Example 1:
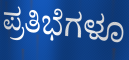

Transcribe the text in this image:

ಪ್ರತಿಭೆಗಳೂ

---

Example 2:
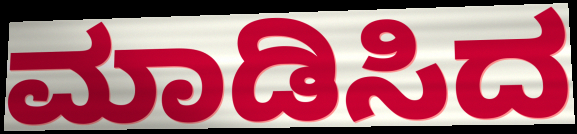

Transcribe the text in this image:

ಮಾಡಿಸಿದ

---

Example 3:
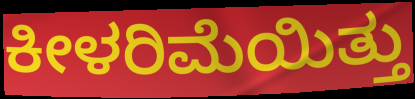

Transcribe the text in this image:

ಕೀಳರಿಮೆಯಿತ್ತು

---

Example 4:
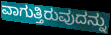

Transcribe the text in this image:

ವಾಗುತ್ತಿರುವುದನ್ನು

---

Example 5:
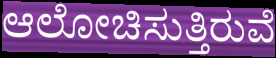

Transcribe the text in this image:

ಆಲೋಚಿಸುತ್ತಿರುವೆ